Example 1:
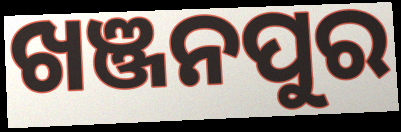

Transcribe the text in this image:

ଖଞ୍ଜନପୁର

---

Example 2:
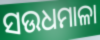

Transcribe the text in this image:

ସଉଧମାଳା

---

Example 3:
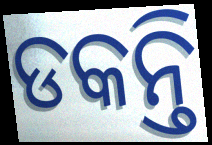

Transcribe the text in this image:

ଡକନ୍ତି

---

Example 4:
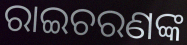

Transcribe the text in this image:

ରାଇଚରଣଙ୍କ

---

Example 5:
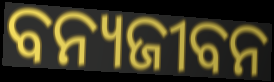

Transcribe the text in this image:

ବନ୍ୟଜୀବନ